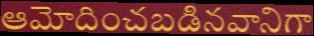
ఆమోదించబడినవానిగా